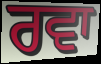
ਰਵਾ